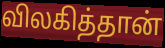
விலகித்தான்